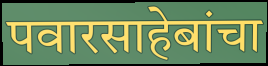
पवारसाहेबांचा